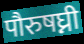
पौरुषघ्नी